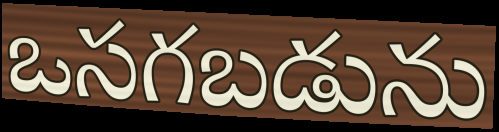
ఒసగబడును